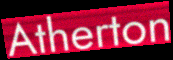
Atherton